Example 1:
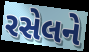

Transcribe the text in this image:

રસેલને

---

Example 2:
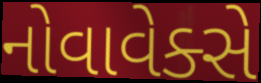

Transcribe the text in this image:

નોવાવેક્સે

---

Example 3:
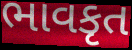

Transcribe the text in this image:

ભાવકૃત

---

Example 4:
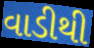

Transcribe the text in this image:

વાડીથી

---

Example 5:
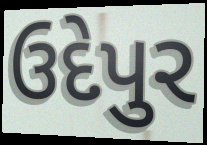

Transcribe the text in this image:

ઉદેપુર